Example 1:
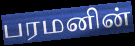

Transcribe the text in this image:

பரமனின்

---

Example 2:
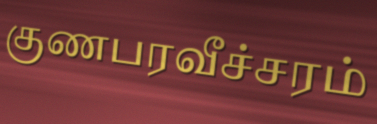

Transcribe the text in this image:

குணபரவீச்சரம்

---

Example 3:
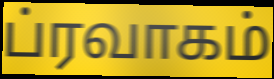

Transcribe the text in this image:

ப்ரவாகம்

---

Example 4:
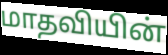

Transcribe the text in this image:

மாதவியின்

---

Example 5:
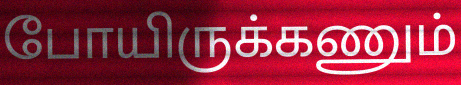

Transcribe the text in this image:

போயிருக்கணும்